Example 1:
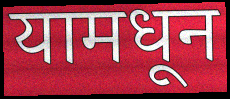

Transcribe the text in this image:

यामधून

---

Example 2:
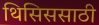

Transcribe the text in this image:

थिसिससाठी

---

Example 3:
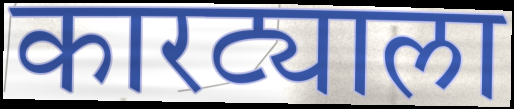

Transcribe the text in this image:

कारट्याला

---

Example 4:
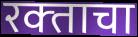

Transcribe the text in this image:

रक्‍ताचा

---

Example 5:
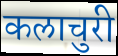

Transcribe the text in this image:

कलाचुरी